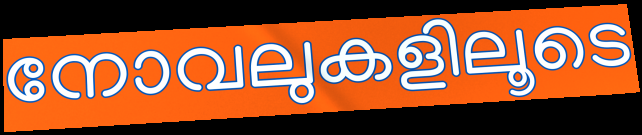
നോവലുകളിലൂടെ